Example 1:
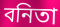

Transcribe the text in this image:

বনিতা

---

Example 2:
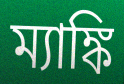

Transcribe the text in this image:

ম্যাঙ্কি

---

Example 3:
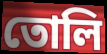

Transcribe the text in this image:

তোলি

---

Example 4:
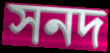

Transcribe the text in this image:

সনদ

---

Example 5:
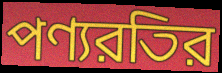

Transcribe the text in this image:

পণ্যরতির